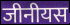
जीनीयस